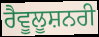
ਰੈਵੂਲੂਸ਼ਨਰੀ